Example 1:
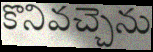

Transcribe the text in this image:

కొనివచ్చెను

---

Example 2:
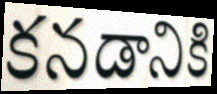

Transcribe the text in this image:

కనడానికి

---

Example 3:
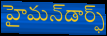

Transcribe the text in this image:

హైమన్‌డార్ఫ్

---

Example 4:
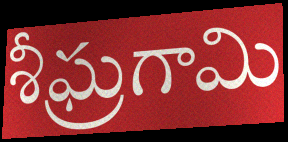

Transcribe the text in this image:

శీఘ్రగామి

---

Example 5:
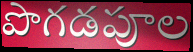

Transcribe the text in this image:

పొగడపూల